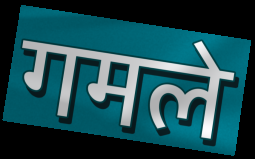
गमले